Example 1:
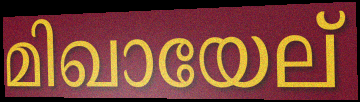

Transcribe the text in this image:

മിഖായേല്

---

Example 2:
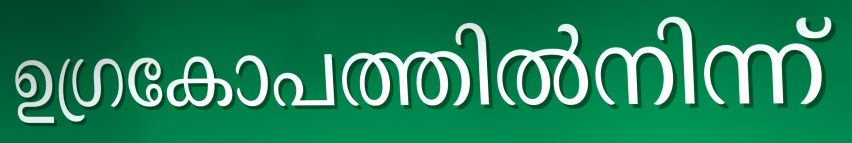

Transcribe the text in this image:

ഉഗ്രകോപത്തിൽനിന്ന്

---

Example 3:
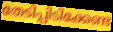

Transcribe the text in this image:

തേടിപ്പിടിക്കേണ്ട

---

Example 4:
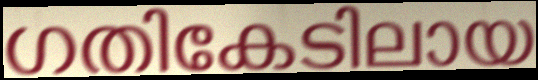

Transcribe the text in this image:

ഗതികേടിലായ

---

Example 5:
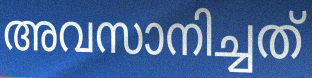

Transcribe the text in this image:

അവസാനിച്ചത്